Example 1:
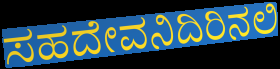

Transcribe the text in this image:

ಸಹದೇವನಿದಿರಿನಲಿ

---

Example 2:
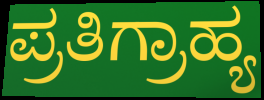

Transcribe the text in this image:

ಪ್ರತಿಗ್ರಾಹ್ಯ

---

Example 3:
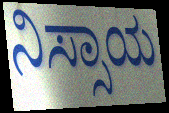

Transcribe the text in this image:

ನಿಸ್ಸಾಯ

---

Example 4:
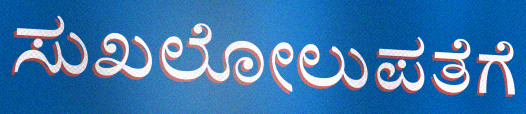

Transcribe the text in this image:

ಸುಖಲೋಲುಪತೆಗೆ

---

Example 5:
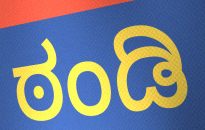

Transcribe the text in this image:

ಠಂಡಿ